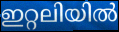
ഇറ്റലിയിൽ